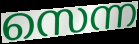
സെന്ന